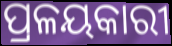
ପ୍ରଳୟକାରୀ